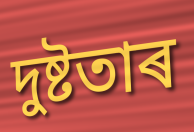
দুষ্টতাৰ